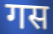
गस